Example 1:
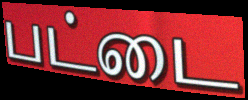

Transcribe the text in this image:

பட்டை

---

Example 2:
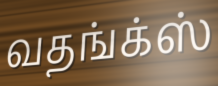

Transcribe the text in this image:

வதங்க்ஸ்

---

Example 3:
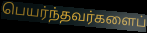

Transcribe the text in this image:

பெயர்ந்தவர்களைப்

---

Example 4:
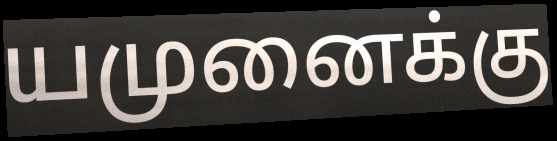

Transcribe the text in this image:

யமுனைக்கு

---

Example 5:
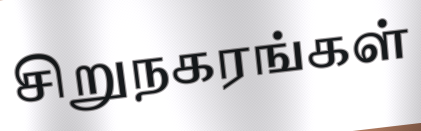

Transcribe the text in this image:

சிறுநகரங்கள்